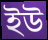
ইউ